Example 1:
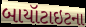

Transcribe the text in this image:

બાયૉટાઇટના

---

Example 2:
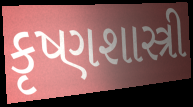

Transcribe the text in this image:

કૃષ્ણશાસ્ત્રી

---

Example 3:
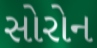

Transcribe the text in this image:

સોરોન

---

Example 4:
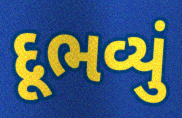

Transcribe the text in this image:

દૂભવ્યું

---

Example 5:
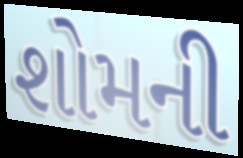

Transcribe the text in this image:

શોમની